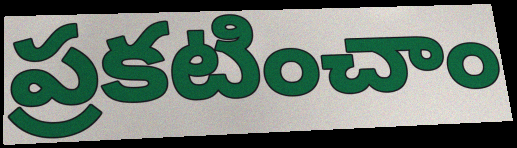
ప్రకటించాం